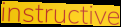
instructive